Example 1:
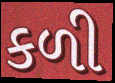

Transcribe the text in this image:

કળી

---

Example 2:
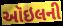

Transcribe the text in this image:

ઑઇલની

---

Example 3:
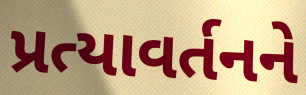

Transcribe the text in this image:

પ્રત્યાવર્તનને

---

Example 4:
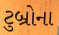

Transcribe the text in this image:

ટુબ્રોના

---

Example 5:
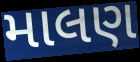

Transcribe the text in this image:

માલણ